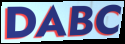
DABC